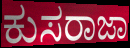
ಕುಸರಾಜಾ